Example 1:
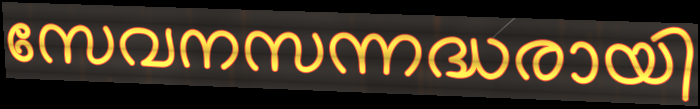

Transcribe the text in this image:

സേവനസന്നദ്ധരായി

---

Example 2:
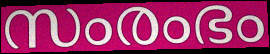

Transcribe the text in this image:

സംരംഭം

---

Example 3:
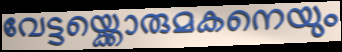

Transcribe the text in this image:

വേട്ടയ്ക്കൊരുമകനെയും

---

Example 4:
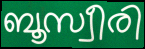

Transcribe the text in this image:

ബൂസ്വീരി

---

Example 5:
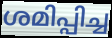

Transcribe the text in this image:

ശമിപ്പിച്ച